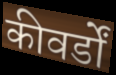
कीवर्डों